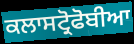
ਕਲਾਸਟ੍ਰੋਫੋਬੀਆ